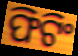
ଫିଟିଂ